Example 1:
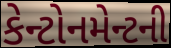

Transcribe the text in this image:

કેન્ટોનમેન્ટની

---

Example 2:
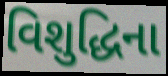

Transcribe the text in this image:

વિશુદ્ધિના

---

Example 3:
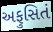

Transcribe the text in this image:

અફુસિતં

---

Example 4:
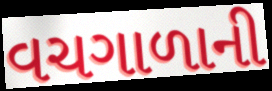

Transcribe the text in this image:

વચગાળાની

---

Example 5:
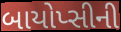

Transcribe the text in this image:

બાયોપ્સીની